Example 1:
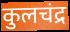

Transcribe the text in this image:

कुलचंद्र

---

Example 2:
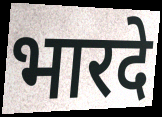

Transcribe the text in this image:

भारदे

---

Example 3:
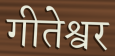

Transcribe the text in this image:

गीतेश्वर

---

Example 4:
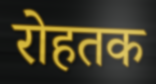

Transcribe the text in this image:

रोहतक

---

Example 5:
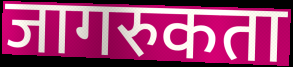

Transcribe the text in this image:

जागरुकता